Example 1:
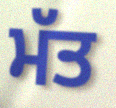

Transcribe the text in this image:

ਮੱਤ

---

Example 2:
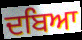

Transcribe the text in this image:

ਦਬਿਆ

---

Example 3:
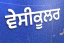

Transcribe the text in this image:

ਵੇਸੀਕੂਲਰ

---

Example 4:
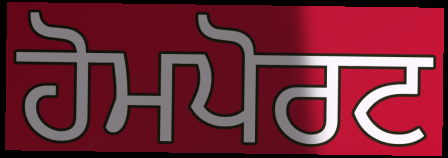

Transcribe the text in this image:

ਹੋਮਪੋਰਟ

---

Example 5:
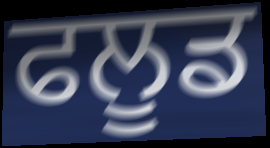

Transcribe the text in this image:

ਫਲੂਡ